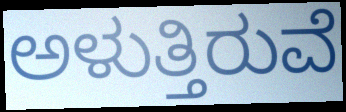
ಅಳುತ್ತಿರುವೆ